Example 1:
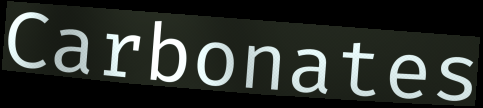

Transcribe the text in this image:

Carbonates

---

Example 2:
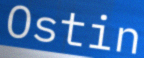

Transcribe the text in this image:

Ostin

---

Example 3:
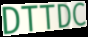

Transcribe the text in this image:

DTTDC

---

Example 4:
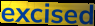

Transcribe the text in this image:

excised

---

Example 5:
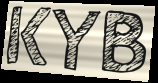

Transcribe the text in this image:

KYB